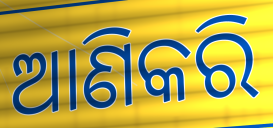
ଆଣିକରି